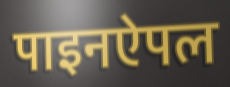
पाइनऐपल